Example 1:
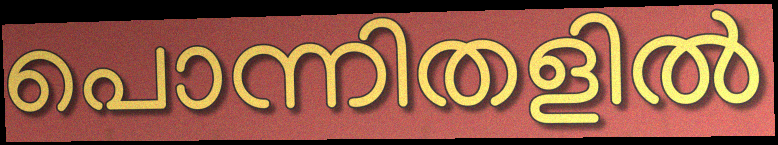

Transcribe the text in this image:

പൊന്നിതളിൽ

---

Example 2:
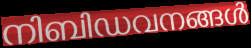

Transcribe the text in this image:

നിബിഡവനങ്ങൾ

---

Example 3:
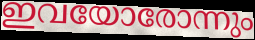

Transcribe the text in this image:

ഇവയോരോന്നും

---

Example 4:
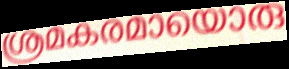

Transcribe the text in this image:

ശ്രമകരമായൊരു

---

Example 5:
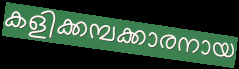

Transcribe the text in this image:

കളിക്കമ്പക്കാരനായ